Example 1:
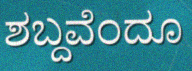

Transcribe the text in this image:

ಶಬ್ದವೆಂದೂ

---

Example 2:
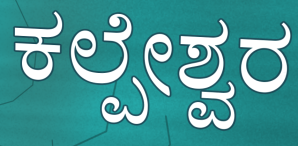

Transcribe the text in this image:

ಕಲ್ಪೇಶ್ವರ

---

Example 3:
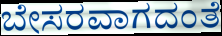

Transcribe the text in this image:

ಬೇಸರವಾಗದಂತೆ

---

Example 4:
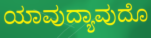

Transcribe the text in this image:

ಯಾವುದ್ಯಾವುದೊ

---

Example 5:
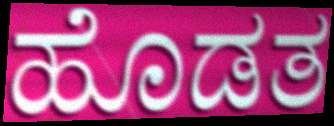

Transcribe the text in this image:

ಹೊಡತ